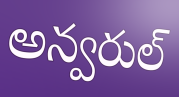
అన్వరుల్